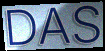
DAS